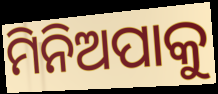
ମିନିଅପାକୁ